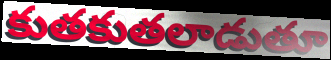
కుతకుతలాడుతూ